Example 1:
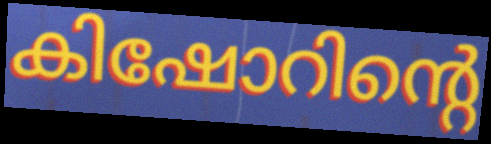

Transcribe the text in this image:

കിഷോറിന്റെ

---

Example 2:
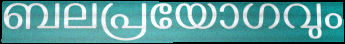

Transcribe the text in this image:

ബലപ്രയോഗവും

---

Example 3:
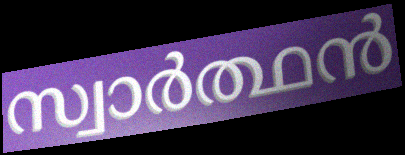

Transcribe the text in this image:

സ്വാർത്ഥൻ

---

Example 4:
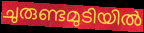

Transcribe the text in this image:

ചുരുണ്ടമുടിയിൽ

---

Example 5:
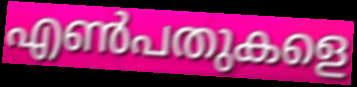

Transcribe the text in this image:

എൺപതുകളെ